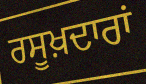
ਰਸੂਖ਼ਦਾਰਾਂ